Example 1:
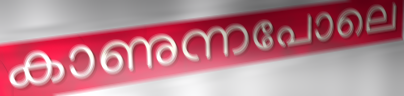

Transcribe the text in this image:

കാണുന്നപോലെ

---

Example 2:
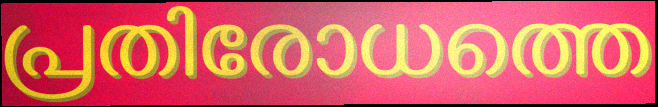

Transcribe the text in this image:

പ്രതിരോധത്തെ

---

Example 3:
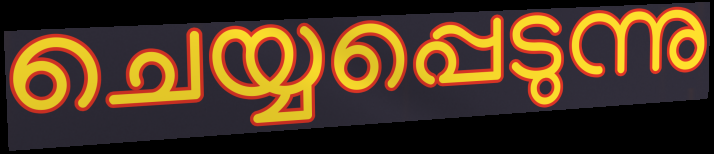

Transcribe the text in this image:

ചെയ്യപ്പെടുന്നു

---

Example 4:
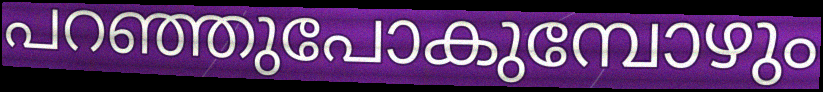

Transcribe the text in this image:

പറഞ്ഞുപോകുമ്പോഴും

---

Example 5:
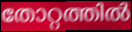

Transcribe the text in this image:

തോറ്റത്തിൽ